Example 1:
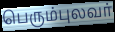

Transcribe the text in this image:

பெரும்புலவர்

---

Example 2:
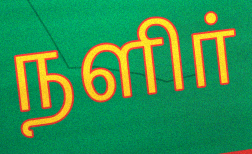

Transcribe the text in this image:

நளிர்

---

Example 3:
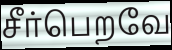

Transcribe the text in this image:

சீர்பெறவே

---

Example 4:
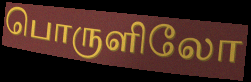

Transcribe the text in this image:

பொருளிலோ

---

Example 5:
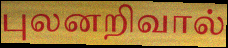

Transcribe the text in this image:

புலனறிவால்